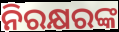
ନିରକ୍ଷରଙ୍କ